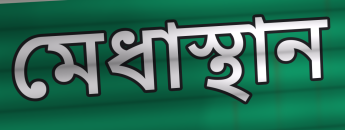
মেধাস্থান